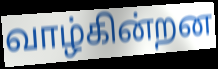
வாழ்கின்றன